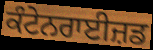
ਕੰਟੇਨਰਾਈਜ਼ਡ